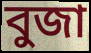
বুজা